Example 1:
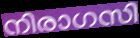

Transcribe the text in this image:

നിരാഗസി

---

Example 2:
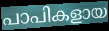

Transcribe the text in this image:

പാപികളായ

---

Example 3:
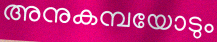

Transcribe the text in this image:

അനുകമ്പയോടും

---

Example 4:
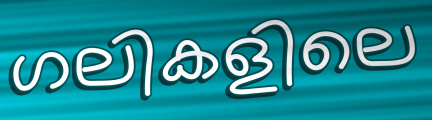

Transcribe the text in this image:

ഗലികളിലെ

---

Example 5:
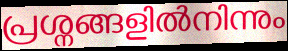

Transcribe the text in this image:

പ്രശ്നങ്ങളിൽനിന്നും